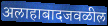
अलाहाबादजवळील